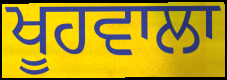
ਖੂਹਵਾਲਾ